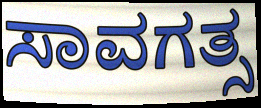
ಸಾವಗತ್ಸ